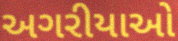
અગરીયાઓ